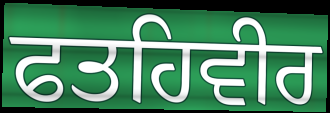
ਫਤਹਿਵੀਰ